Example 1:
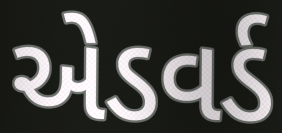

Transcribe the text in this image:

એડવર્ડ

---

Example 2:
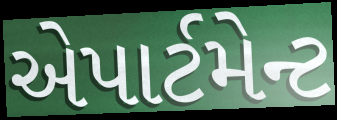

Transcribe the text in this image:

એપાર્ટમેન્ટ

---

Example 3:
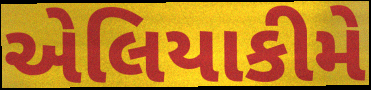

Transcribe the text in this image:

એલિયાકીમે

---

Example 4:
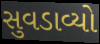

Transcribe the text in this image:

સુવડાવ્યો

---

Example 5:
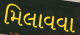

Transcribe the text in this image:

મિલાવવા